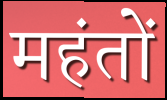
महंतों